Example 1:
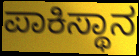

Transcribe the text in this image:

ಪಾಕಿಸ್ಥಾನ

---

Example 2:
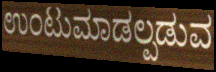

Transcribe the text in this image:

ಉಂಟುಮಾಡಲ್ಪಡುವ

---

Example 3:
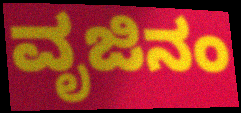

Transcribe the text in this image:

ವೃಜಿನಂ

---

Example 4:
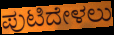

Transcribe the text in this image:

ಪುಟಿದೇಳಲು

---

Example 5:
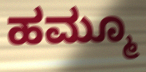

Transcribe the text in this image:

ಹಮ್ಮೂ